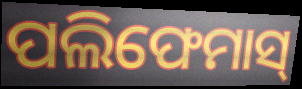
ପଲିଫେମାସ୍